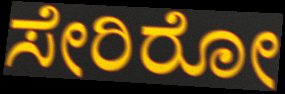
ಸೇರಿರೋ